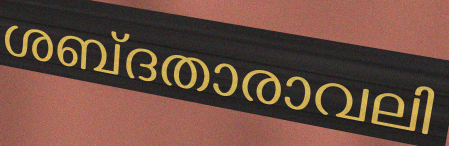
ശബ്‌ദതാരാവലി